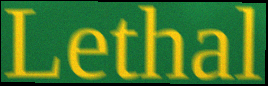
Lethal